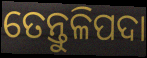
ତେନ୍ତୁଳିପଦା